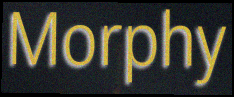
Morphy